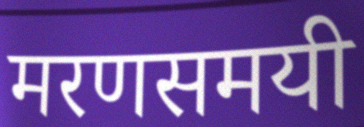
मरणसमयी